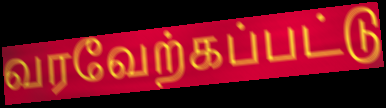
வரவேற்கப்பட்டு